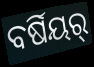
ବର୍ଷିୟର୍